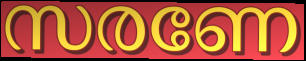
സരണേ